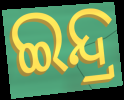
ଇନ୍ଦ୍ର